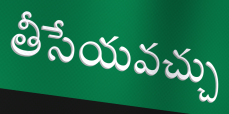
తీసేయవచ్చు